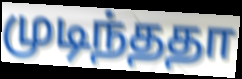
முடிந்ததா